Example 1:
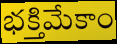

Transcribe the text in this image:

భక్తిమేకాం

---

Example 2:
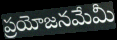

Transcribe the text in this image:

ప్రయోజనమేమీ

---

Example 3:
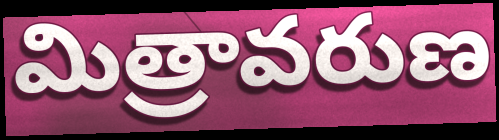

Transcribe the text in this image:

మిత్రావరుణ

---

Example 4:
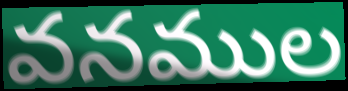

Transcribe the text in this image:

వనముల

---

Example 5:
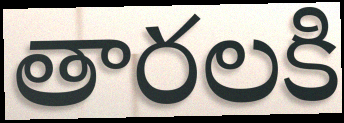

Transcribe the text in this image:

తారలకి